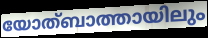
യോത്ബാത്തായിലും